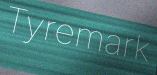
Tyremark